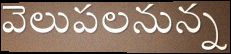
వెలుపలనున్న